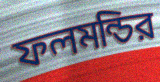
ফলমন্ডির